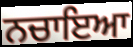
ਨਚਾਇਆ